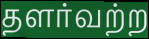
தளர்வற்ற